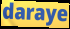
daraye